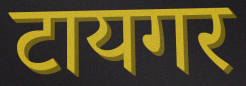
टायगर